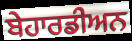
ਬੇਹਾਰਡੀਅਨ